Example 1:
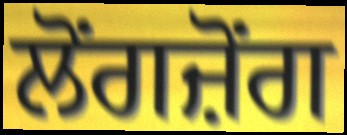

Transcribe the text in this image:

ਲੋਂਗਜ਼ੋਂਗ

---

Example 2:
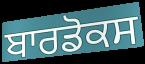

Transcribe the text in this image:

ਬਾਰਡੋਕਸ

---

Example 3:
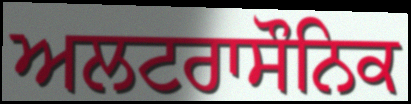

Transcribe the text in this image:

ਅਲਟਰਾਸੌਨਿਕ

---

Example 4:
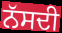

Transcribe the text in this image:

ਨੱਸਦੀ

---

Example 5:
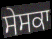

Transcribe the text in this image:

ਸੇਸਕਾ